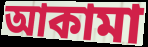
আকামা